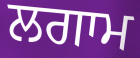
ਲਗਾਮ